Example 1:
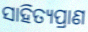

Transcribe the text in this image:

ସାହିତ୍ୟପ୍ରାଣ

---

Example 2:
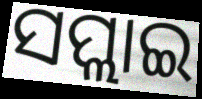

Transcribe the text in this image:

ସପ୍ଲାଇ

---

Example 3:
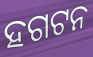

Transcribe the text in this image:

ହଗଟନ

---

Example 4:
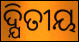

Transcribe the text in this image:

ଦ୍ଯିତୀୟ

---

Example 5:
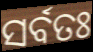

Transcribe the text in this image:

ସର୍ବତଃ